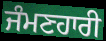
ਜੰਮਣਹਾਰੀ